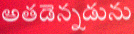
అతడెన్నడును